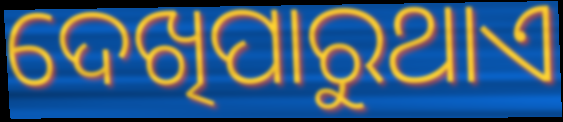
ଦେଖିପାରୁଥାଏ